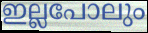
ഇല്ലപോലും